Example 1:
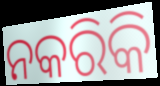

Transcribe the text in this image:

ନକରିକି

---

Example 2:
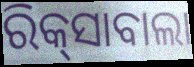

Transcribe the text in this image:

ରିକ୍‌ସାବାଲା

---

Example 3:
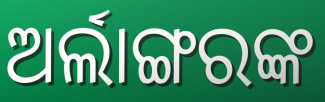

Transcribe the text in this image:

ଅର୍ଲାଙ୍ଗରଙ୍କ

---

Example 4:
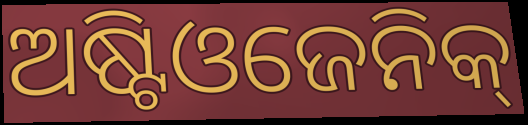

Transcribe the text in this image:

ଅଷ୍ଟିଓଜେନିକ୍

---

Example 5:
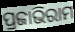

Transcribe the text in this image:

ପ୍ରଜାଭିରାମ